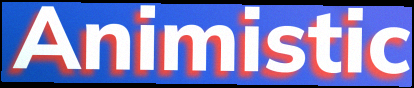
Animistic